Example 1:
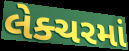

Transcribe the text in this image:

લેક્ચરમાં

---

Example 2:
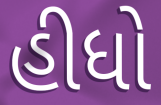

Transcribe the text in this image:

હીધો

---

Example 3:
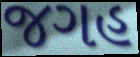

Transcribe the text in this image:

જગહ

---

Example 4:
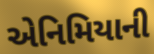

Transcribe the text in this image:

એનિમિયાની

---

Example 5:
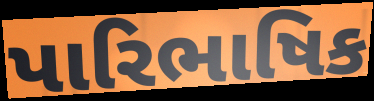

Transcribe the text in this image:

પારિભાષિક